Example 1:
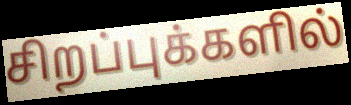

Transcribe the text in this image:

சிறப்புக்களில்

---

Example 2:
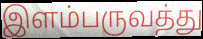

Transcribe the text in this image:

இளம்பருவத்து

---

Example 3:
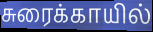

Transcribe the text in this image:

சுரைக்காயில்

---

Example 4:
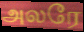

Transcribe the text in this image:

அலரே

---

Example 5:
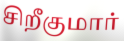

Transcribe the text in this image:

சிறீகுமார்